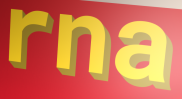
rna